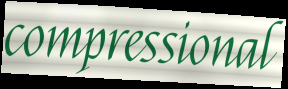
compressional